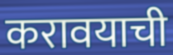
करावयाची